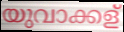
യുവാക്കള്